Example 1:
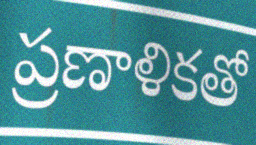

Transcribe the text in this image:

ప్రణాళికతో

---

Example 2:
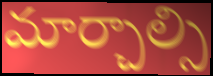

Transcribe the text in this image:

మార్చాల్సి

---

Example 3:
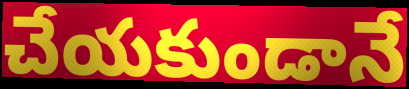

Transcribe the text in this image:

చేయకుండానే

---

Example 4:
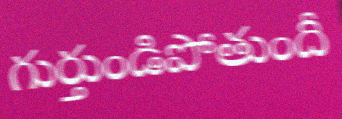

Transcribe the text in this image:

గుర్తుండిపోతుందీ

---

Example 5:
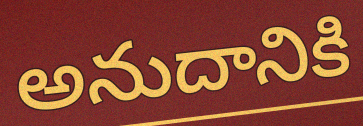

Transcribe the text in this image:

అనుదానికి